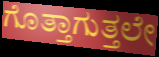
ಗೊತ್ತಾಗುತ್ತಲೇ